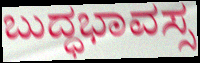
ಬುದ್ಧಭಾವಸ್ಸ